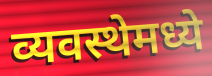
व्यवस्थेमध्ये